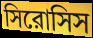
সিরোসিস